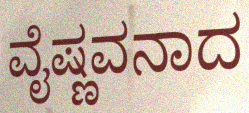
ವೈಷ್ಣವನಾದ